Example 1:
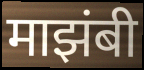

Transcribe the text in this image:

माझंबी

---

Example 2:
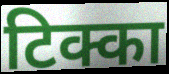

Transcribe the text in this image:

टिक्का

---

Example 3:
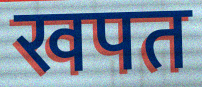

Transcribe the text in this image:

खपत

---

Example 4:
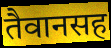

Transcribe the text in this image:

तैवानसह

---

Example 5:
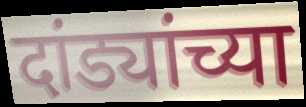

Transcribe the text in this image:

दांड्यांच्या